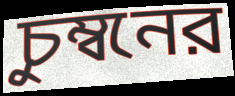
চুম্বনের